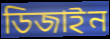
ডিজাইন